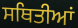
ਸਥਿਤੀਆਂ